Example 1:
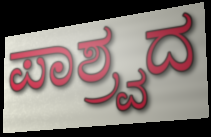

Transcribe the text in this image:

ಪಾಶ್ರ್ವದ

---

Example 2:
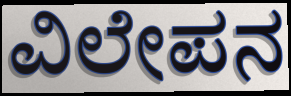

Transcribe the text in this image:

ವಿಲೇಪನ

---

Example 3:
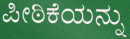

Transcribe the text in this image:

ಪೀಠಿಕೆಯನ್ನು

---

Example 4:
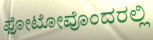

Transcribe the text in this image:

ಫೋಟೋವೊಂದರಲ್ಲಿ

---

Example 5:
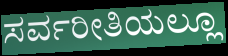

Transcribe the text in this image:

ಸರ್ವರೀತಿಯಲ್ಲೂ